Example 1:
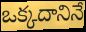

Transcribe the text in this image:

ఒక్కదానినే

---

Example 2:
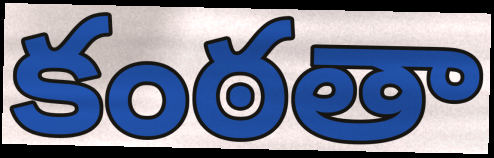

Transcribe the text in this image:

కంఠతా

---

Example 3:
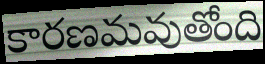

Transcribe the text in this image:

కారణమవుతోంది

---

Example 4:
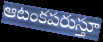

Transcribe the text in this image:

ఆటంకపరుస్తూ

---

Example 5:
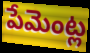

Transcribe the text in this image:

పేమెంట్ల